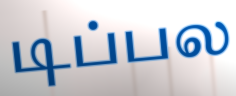
டிப்பல